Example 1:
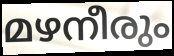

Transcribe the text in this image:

മഴനീരും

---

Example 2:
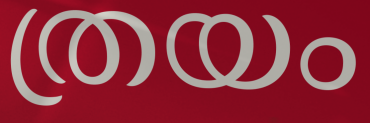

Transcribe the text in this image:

ത്രയം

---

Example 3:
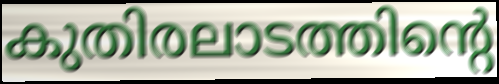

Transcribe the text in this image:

കുതിരലാടത്തിന്റെ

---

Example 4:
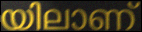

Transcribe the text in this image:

യിലാണ്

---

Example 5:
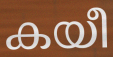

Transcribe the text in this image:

കയീ